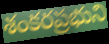
శంకరప్రభుని